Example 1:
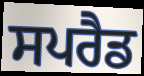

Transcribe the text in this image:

ਸਪਰੈਡ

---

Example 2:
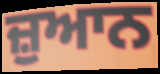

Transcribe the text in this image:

ਜ਼ੁਆਨ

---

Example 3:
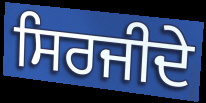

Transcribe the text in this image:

ਸਿਰਜੀਦੇ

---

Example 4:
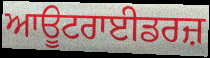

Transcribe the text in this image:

ਆਊਟਰਾਈਡਰਜ਼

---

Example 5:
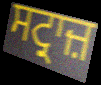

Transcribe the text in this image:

ਸਟ੍ਰਾਜ਼